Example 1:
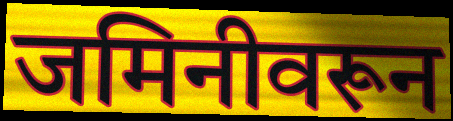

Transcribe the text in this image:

जमिनीवरून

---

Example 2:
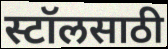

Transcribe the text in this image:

स्टॉलसाठी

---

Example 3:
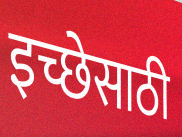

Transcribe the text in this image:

इच्छेसाठी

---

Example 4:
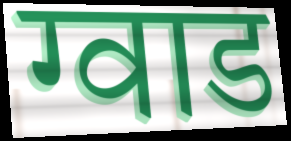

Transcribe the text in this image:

ग्वाड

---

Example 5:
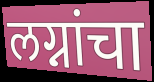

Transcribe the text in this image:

लग्नांचा